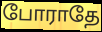
போராதே